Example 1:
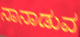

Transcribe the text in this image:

ನಾನಾಡುವ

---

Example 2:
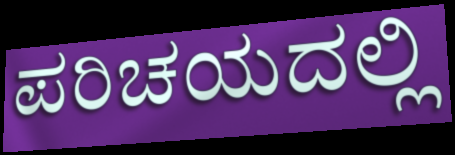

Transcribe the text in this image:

ಪರಿಚಯದಲ್ಲಿ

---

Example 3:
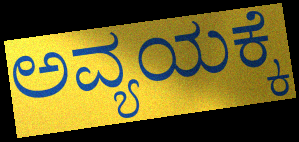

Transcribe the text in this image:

ಅವ್ಯಯಕ್ಕೆ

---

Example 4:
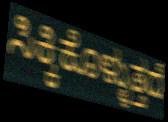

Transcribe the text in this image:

ಸಿಕ್ಕಿಕೊಳ್ಳುತ್ತದೆ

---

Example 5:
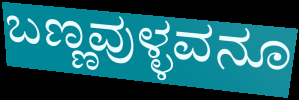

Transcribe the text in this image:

ಬಣ್ಣವುಳ್ಳವನೂ